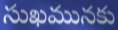
సుఖమునకు